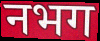
नभग